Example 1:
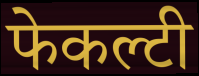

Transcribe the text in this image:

फेकल्टी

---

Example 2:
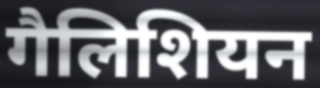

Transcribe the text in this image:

गैलिशियन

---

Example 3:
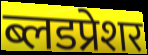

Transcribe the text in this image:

ब्लडप्रेशर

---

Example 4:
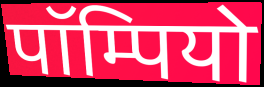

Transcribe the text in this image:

पॉम्पियो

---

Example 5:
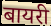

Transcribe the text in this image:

बायरी